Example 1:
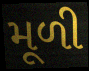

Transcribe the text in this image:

મૂળી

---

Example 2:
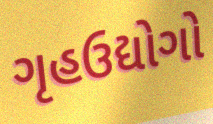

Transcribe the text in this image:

ગૃહઉદ્યોગો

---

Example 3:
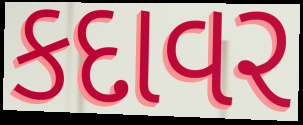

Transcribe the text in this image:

કદાવર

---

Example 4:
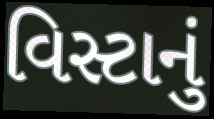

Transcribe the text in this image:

વિસ્ટાનું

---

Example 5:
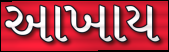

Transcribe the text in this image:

આખાય